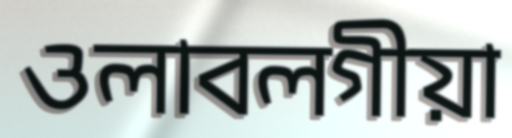
ওলাবলগীয়া